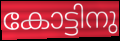
കോട്ടിനു